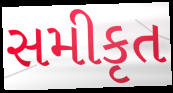
સમીકૃત